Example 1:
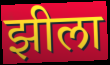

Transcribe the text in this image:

झीला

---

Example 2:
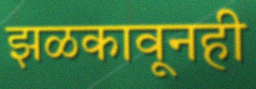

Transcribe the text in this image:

झळकावूनही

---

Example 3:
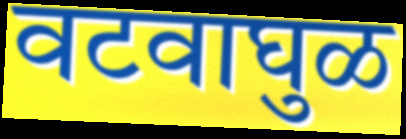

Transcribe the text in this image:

वटवाघुळ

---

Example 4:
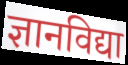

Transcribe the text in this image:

ज्ञानविद्या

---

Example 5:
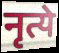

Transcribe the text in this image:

नृत्ये